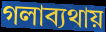
গলাব্যথায়